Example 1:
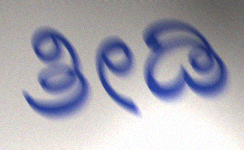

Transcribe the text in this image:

ತೀಡಿ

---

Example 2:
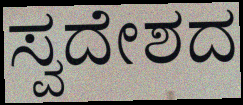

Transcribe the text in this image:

ಸ್ವದೇಶದ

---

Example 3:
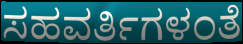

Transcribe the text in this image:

ಸಹವರ್ತಿಗಳಂತೆ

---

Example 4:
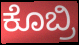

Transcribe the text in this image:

ಕೊಬ್ರಿ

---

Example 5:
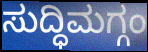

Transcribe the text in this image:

ಸುದ್ಧಿಮಗ್ಗಂ